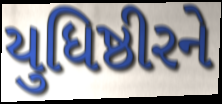
યુધિષ્ઠીરને